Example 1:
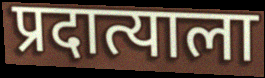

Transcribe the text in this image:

प्रदात्याला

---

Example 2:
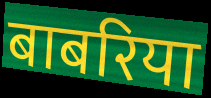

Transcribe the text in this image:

बाबरिया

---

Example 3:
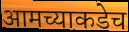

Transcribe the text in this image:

आमच्याकडेच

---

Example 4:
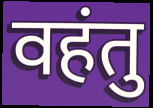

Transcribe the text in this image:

वहंतु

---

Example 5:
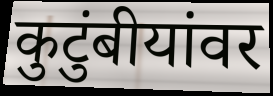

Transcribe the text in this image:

कुटुंबीयांवर